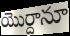
యొర్దానూ